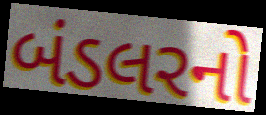
બંડલરનો